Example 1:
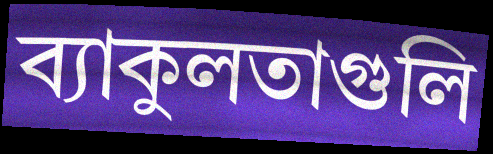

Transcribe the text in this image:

ব্যাকুলতাগুলি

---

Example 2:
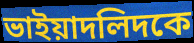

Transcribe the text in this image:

ভাইয়াদলিদকে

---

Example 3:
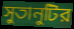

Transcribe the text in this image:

সুতানুটির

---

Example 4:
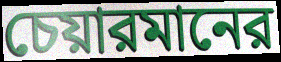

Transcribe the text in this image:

চেয়ারমানের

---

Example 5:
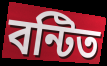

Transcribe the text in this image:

বন্টিত